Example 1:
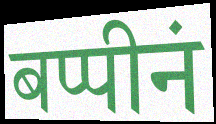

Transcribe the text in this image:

बप्पीनं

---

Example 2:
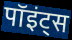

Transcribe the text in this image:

पॉइंट्स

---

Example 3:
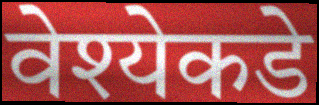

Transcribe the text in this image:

वेश्येकडे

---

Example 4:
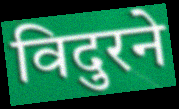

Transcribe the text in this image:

विदुरने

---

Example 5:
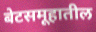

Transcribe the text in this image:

बेटसमूहातील